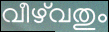
വീഴ്‌വതും